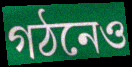
গঠনেও